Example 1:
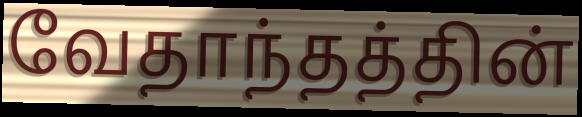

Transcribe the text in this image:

வேதாந்தத்தின்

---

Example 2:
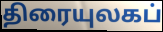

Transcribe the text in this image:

திரையுலகப்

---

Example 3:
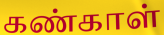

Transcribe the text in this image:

கண்காள்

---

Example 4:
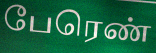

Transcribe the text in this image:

பேரெண்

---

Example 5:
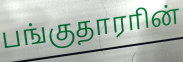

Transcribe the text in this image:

பங்குதாரரின்